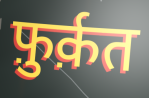
फ़ुर्क़त